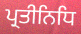
ਪ੍ਰਤੀਨਿਧਿ